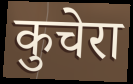
कुचेरा